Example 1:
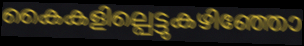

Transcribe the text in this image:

കൈകളില്പെട്ടുകഴിഞ്ഞോ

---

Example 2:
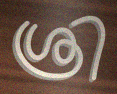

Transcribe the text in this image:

ശ്രി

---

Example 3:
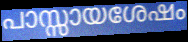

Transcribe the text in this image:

പാസ്സായശേഷം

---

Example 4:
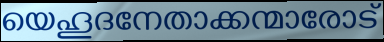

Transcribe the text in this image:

യെഹൂദനേതാക്കന്മാരോട്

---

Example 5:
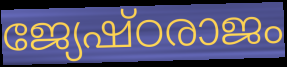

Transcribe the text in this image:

ജ്യേഷ്ഠരാജം